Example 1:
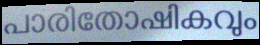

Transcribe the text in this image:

പാരിതോഷികവും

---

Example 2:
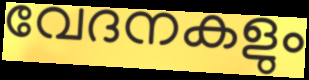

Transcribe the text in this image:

വേദനകളും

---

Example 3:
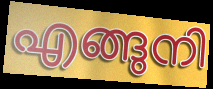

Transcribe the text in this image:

എങ്ങുനി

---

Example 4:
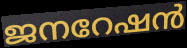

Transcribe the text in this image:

ജനറേഷൻ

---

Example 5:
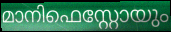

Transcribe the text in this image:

മാനിഫെസ്റ്റോയും